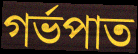
গৰ্ভপাত